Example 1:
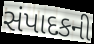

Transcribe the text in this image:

સંપાદકની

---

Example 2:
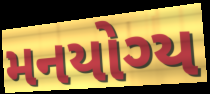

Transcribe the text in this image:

મનયોગ્ય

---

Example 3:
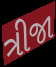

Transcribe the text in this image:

ત્રીજા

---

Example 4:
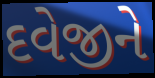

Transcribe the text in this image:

દવેજીને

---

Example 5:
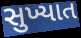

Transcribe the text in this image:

સુખ્યાત